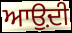
ਆਉ਼ਦੀ